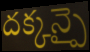
దక్కన్పై